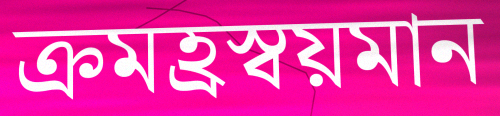
ক্রমহ্রস্বয়মান